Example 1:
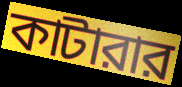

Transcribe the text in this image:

কাটারার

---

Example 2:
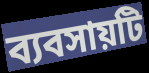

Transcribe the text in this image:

ব্যবসায়টি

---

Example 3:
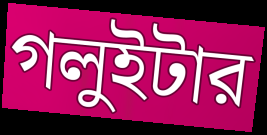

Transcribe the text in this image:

গলুইটার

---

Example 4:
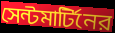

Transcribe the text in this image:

সেন্টমার্টিনের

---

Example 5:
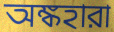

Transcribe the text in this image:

অঙ্কহারা